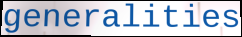
generalities